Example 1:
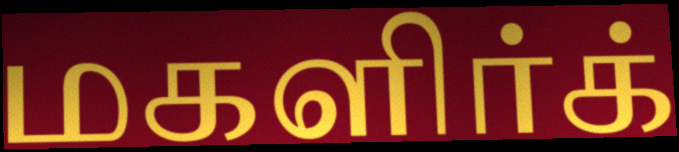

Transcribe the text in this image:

மகளிர்க்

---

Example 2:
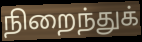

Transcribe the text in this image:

நிறைந்துக்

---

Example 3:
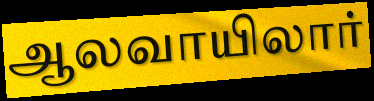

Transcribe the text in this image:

ஆலவாயிலார்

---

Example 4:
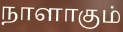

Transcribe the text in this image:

நாளாகும்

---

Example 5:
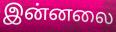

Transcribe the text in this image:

இன்னலை